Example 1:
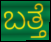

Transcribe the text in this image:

ಬತ್ತೆ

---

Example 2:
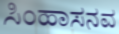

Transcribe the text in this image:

ಸಿಂಹಾಸನವ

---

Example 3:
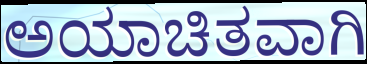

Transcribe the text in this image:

ಅಯಾಚಿತವಾಗಿ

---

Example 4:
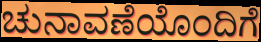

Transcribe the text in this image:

ಚುನಾವಣೆಯೊಂದಿಗೆ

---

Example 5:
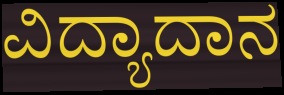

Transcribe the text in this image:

ವಿದ್ಯಾದಾನ